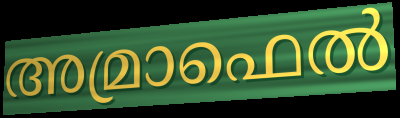
അമ്രാഫെൽ